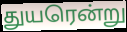
துயரென்று